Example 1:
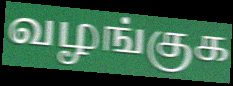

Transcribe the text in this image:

வழங்குக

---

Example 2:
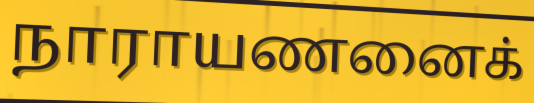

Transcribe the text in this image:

நாராயணனைக்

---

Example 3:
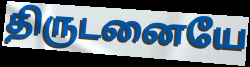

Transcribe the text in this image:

திருடனையே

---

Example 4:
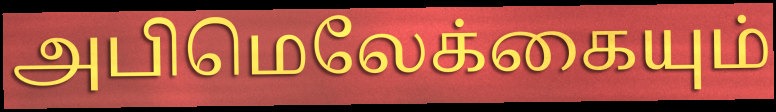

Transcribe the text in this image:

அபிமெலேக்கையும்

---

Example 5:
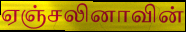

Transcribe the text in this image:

ஏஞ்சலினாவின்